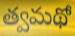
త్వమథో